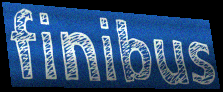
finibus